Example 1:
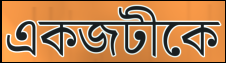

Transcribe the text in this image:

একজটীকে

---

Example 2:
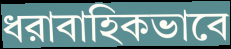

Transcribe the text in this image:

ধরাবাহিকভাবে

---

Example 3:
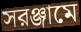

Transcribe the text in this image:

সরঞ্জামে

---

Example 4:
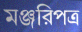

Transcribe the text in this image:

মঞ্জরিপত্র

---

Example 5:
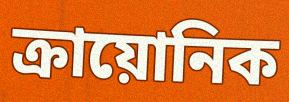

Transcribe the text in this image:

ক্রায়োনিক